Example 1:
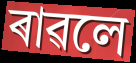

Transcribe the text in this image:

ৰাৱলে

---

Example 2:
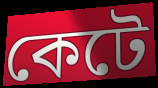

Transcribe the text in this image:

কেটে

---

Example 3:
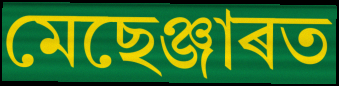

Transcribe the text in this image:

মেছেঞ্জাৰত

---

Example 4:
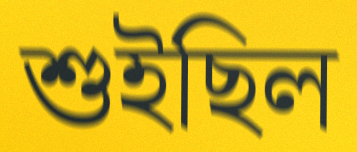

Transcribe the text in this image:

শুইছিল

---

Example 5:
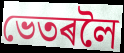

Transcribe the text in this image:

ভেতৰলৈ